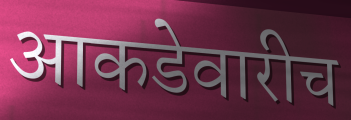
आकडेवारीच